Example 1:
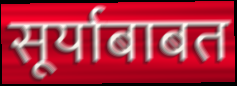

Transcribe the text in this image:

सूर्याबाबत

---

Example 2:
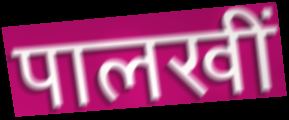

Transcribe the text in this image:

पालखीं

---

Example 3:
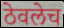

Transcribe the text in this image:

ठेवलेच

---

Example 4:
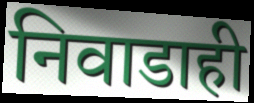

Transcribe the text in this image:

निवाडाही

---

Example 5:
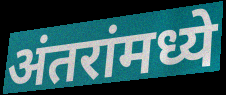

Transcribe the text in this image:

अंतरांमध्ये